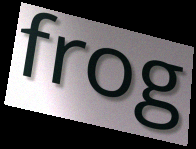
frog